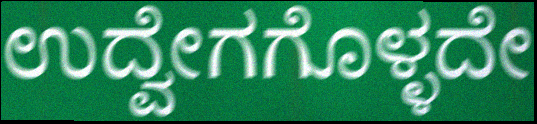
ಉದ್ವೇಗಗೊಳ್ಳದೇ